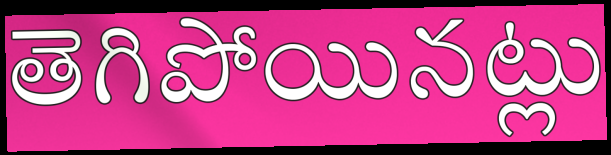
తెగిపోయినట్లు